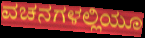
ವಚನಗಳಲ್ಲಿಯೂ